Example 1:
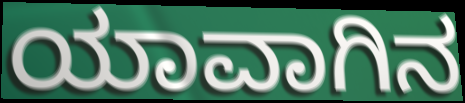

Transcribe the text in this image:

ಯಾವಾಗಿನ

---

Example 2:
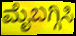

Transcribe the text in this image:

ಮೈಬಗ್ಗಿಸಿ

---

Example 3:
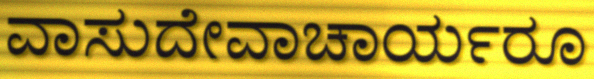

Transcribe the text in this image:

ವಾಸುದೇವಾಚಾರ್ಯರೂ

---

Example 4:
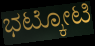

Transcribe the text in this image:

ಭಟ್ಕೋಟಿ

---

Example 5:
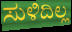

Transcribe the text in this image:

ಸುಳಿದಿಲ್ಲ